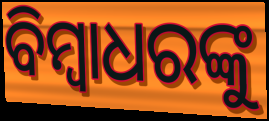
ବିମ୍ୱାଧରଙ୍କୁ